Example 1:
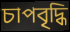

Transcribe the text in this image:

চাপবৃদ্ধি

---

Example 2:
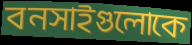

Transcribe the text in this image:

বনসাইগুলোকে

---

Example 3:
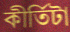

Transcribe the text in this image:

কীর্তিটা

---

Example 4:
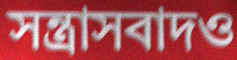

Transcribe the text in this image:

সন্ত্রাসবাদও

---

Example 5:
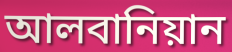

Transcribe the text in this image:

আলবানিয়ান